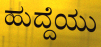
ಹುದ್ದೆಯು